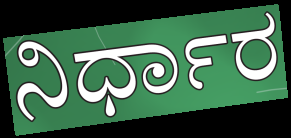
ನಿರ್ಧಾರ